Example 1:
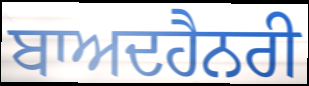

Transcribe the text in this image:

ਬਾਅਦਹੈਨਰੀ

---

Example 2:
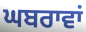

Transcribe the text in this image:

ਘਬਰਾਵਾਂ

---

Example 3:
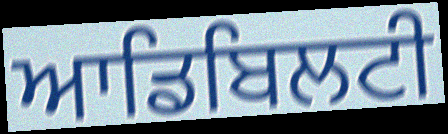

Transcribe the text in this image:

ਆਡਿਬਿਲਟੀ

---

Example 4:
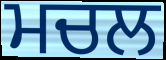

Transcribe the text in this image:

ਮਚਲ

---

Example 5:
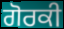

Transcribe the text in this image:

ਗੋਰਕੀ